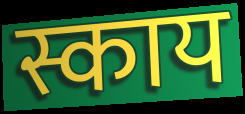
स्काय